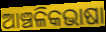
ଆଞ୍ଚଳିକଭାଷା